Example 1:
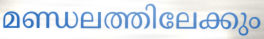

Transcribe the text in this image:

മണ്ഡലത്തിലേക്കും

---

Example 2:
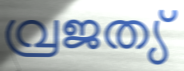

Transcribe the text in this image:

വ്രജത്യ്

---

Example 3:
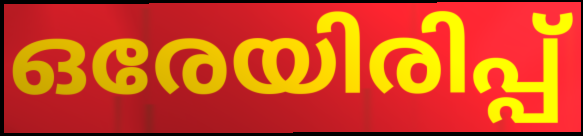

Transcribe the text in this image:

ഒരേയിരിപ്പ്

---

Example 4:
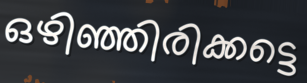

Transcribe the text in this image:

ഒഴിഞ്ഞിരിക്കട്ടെ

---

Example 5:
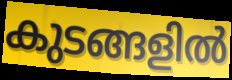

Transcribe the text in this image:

കുടങ്ങളിൽ